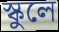
স্কুলে